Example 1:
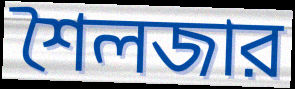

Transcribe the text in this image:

শৈলজার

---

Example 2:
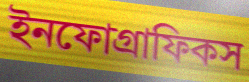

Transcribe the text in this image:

ইনফোগ্রাফিকস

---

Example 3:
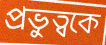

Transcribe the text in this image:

প্রভুত্বকে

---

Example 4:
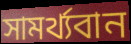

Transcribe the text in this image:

সামর্থ্যবান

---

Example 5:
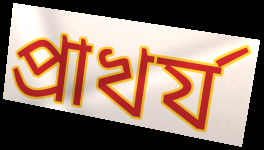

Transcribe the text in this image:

প্রাখর্য